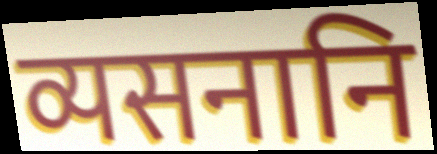
व्यसनानि